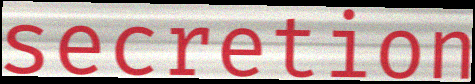
secretion